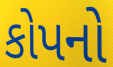
કોપનો